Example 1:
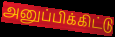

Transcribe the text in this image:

அனுப்பிக்கிட்டு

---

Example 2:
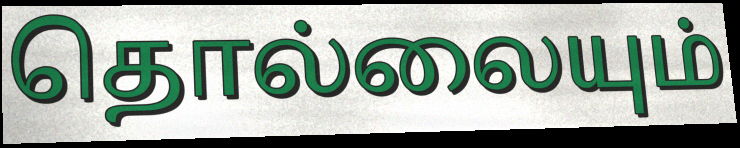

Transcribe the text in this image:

தொல்லையும்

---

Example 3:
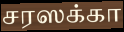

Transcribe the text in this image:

சரஸக்கா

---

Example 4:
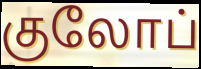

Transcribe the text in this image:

குலோப்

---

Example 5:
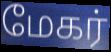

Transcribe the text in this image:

மேகர்